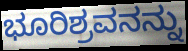
ಭೂರಿಶ್ರವನನ್ನು